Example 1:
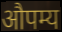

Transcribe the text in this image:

औपम्य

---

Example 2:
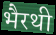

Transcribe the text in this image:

भैरथी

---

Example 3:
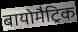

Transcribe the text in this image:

बायोमैट्रिक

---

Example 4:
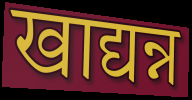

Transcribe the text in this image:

खाद्यन्न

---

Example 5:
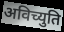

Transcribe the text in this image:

अविच्युति